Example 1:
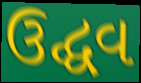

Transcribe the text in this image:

ઉદ્ઘવ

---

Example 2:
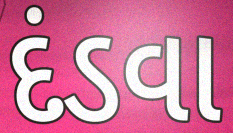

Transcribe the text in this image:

દંડવા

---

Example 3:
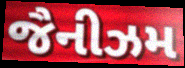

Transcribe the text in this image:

જૈનીઝમ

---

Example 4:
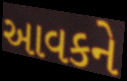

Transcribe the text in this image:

આવકને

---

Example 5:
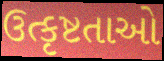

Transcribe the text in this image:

ઉત્કૃષ્ટતાઓ